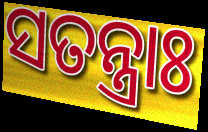
ସତନ୍ତ୍ରାଃ